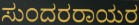
ಸುಂದರರಾಯರ